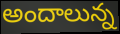
అందాలున్న